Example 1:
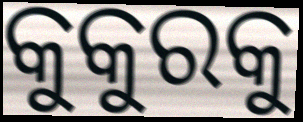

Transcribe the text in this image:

କୁକୁରକୁ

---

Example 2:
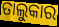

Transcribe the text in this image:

ତାଲୁକାର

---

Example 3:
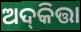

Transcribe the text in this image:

ଅଦ୍‌କିତ୍ତା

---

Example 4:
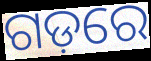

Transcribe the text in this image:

ଗଡ଼ରେ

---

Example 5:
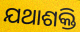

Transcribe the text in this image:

ଯଥାଶକ୍ତି